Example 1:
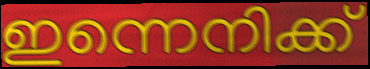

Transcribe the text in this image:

ഇന്നെനിക്ക്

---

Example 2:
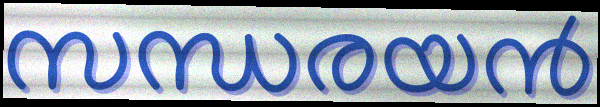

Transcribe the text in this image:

സന്ധരയൻ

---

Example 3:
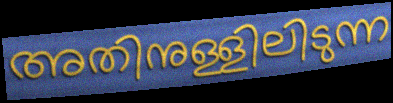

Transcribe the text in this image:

അതിനുള്ളിലിടുന്ന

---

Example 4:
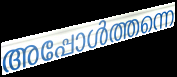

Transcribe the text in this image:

അപ്പോൾത്തന്നെ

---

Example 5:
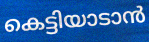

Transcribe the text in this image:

കെട്ടിയാടാൻ